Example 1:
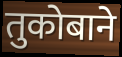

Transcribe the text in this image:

तुकोबाने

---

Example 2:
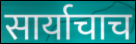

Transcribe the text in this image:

सार्याचाच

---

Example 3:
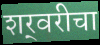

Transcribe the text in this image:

शर्वरीचा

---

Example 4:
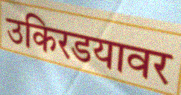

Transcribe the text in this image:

उकिरडयावर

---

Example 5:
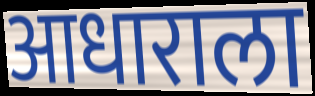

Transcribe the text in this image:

आधाराला